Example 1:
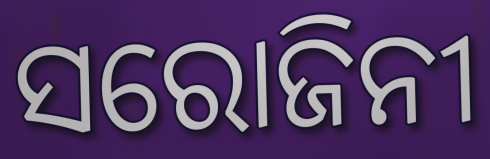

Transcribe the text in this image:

ସରୋଜିନୀ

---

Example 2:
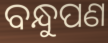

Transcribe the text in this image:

ବନ୍ଧୁପଣ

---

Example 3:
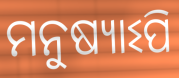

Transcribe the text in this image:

ମନୁଷ୍ୟାଽପି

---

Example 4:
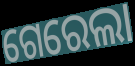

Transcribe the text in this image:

ଗେରେଲା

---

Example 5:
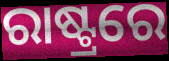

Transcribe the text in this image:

ରାଷ୍ଟ୍ରରେ